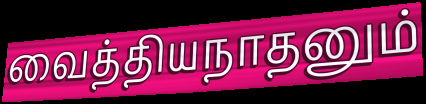
வைத்தியநாதனும்